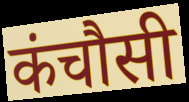
कंचौसी